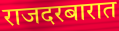
राजदरबारात